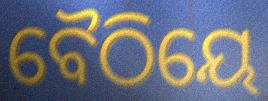
ବୈଠିୟେ